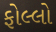
ફોલ્લો